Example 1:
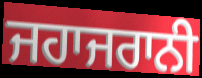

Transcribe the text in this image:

ਜਹਾਜਰਾਨੀ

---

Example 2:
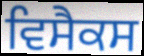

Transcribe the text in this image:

ਵਿਸੈਕਸ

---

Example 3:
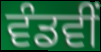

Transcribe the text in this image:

ਵੰਡਵੀਂ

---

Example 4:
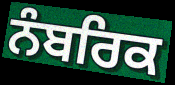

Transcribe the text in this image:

ਨੰਬਰਿਕ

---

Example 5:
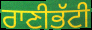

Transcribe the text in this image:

ਰਾਣੀਭੱਟੀ